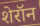
शेरॉन